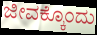
ಜೀವಕ್ಕೊಂದು